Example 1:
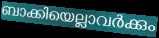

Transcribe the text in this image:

ബാക്കിയെല്ലാവർക്കും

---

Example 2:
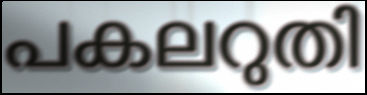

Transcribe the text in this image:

പകലറുതി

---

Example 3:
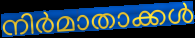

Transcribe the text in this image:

നിർമാതാക്കൾ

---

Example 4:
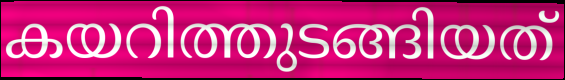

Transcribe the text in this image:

കയറിത്തുടങ്ങിയത്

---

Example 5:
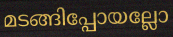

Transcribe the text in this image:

മടങ്ങിപ്പോയല്ലോ